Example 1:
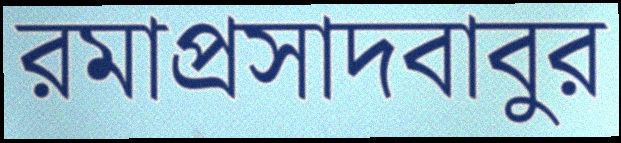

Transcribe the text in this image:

রমাপ্রসাদবাবুর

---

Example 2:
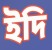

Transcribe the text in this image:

ইদি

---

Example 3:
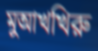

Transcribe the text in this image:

মুআখখিরু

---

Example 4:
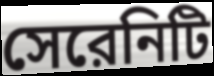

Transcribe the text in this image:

সেরেনিটি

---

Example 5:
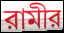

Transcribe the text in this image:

রামীর